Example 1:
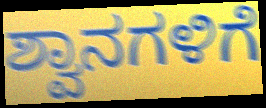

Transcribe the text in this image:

ಶ್ವಾನಗಳಿಗೆ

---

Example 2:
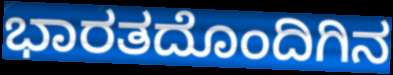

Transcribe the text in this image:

ಭಾರತದೊಂದಿಗಿನ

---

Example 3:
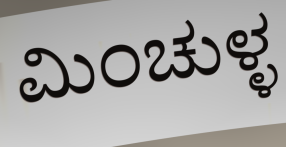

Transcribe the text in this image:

ಮಿಂಚುಳ್ಳ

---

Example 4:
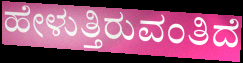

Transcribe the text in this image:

ಹೇಳುತ್ತಿರುವಂತಿದೆ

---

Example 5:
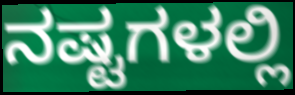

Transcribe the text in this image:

ನಷ್ಟಗಳಲ್ಲಿ